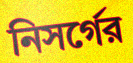
নিসর্গের